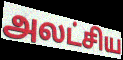
அலட்சிய